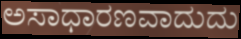
ಅಸಾಧಾರಣವಾದುದು